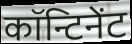
कॉन्टिनेंट